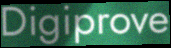
Digiprove